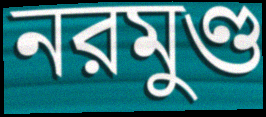
নরমুণ্ড